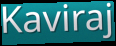
Kaviraj